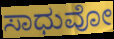
ಸಾಧುವೋ